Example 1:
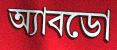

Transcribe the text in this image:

অ্যাবডো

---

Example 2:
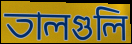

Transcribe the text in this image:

তালগুলি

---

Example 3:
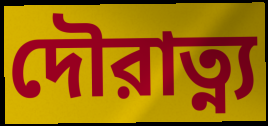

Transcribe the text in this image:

দৌরাত্ন্য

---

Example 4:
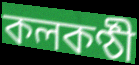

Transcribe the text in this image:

কলকণ্ঠী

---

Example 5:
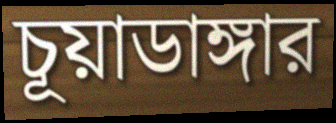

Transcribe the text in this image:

চূয়াডাঙ্গার